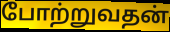
போற்றுவதன்